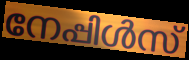
നേപ്പിൾസ്